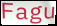
Fagu